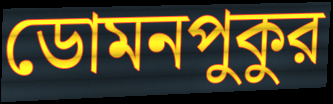
ডোমনপুকুর